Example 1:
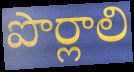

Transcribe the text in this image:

పొర్లాలి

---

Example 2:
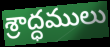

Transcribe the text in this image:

శ్రాద్ధములు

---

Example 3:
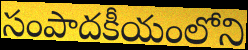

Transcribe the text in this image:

సంపాదకీయంలోని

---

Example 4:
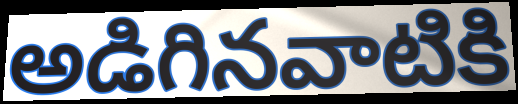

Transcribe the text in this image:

అడిగినవాటికి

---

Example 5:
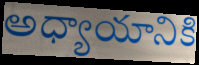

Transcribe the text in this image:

అధ్యాయానికి